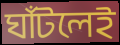
ঘাঁটলেই